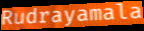
Rudrayamala